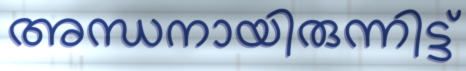
അന്ധനായിരുന്നിട്ട്